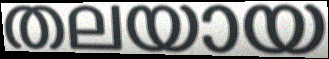
തലയായ